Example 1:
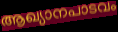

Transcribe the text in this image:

ആഖ്യാനപാടവം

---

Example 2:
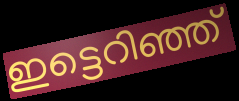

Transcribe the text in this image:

ഇട്ടെറിഞ്ഞ്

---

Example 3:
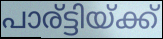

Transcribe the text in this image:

പാര്ട്ടിയ്ക്ക്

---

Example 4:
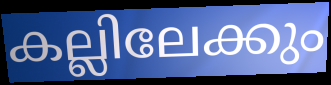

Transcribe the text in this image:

കല്ലിലേക്കും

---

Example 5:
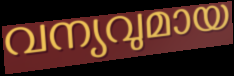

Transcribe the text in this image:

വന്യവുമായ